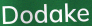
Dodake